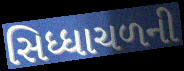
સિધ્ધાચળની